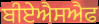
ਬੀਏਐਸਐਫ